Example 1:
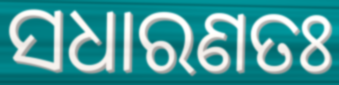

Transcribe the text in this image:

ସଧାରଣତଃ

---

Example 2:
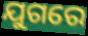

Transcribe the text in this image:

ଯୁଗରେ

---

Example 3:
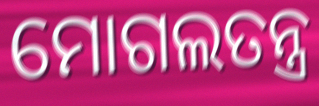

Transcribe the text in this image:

ମୋଗଲତନ୍ତ୍ର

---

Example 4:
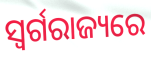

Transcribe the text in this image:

ସ୍ୱର୍ଗରାଜ୍ୟରେ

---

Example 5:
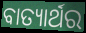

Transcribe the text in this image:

ବାତ୍ୟାର୍ଥର